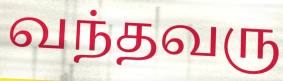
வந்தவரு